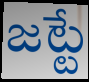
జట్టే